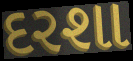
દરશા